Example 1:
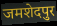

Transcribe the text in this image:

जमशेदपुर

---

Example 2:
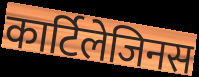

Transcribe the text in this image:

कार्टिलेजिनस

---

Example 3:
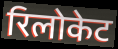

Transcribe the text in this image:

रिलोकेट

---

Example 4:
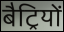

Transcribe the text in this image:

बैट्रियों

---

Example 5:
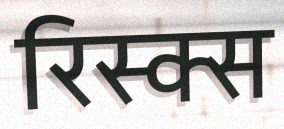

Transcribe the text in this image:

रिस्क्स